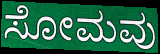
ಸೋಮವು